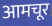
आमचूर